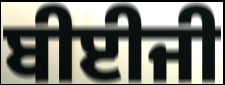
ਬੀਈਜੀ